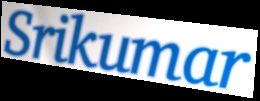
Srikumar